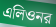
এলিওনর